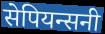
सेपियन्सनी